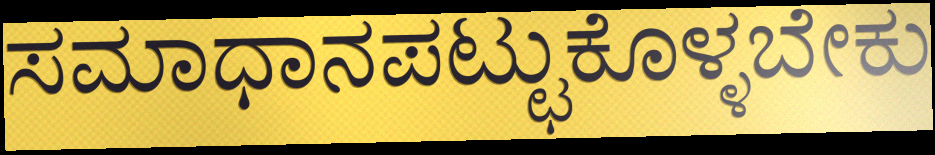
ಸಮಾಧಾನಪಟ್ಟುಕೊಳ್ಳಬೇಕು